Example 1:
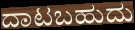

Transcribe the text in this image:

ದಾಟಬಹುದು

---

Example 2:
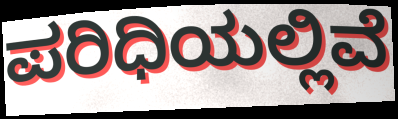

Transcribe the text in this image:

ಪರಿಧಿಯಲ್ಲಿವೆ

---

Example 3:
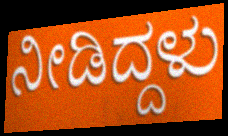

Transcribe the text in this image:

ನೀಡಿದ್ದಳು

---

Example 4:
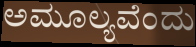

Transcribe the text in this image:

ಅಮೂಲ್ಯವೆಂದು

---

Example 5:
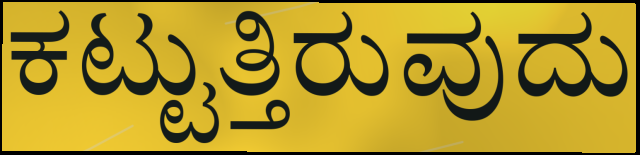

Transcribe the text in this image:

ಕಟ್ಟುತ್ತಿರುವುದು